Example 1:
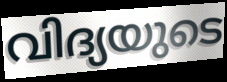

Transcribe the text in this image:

വിദ്യയുടെ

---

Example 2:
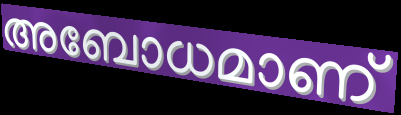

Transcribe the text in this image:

അബോധമാണ്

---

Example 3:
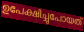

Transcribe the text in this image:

ഉപേക്ഷിച്ചുപോയത്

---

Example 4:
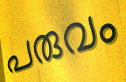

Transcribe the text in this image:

പരുവം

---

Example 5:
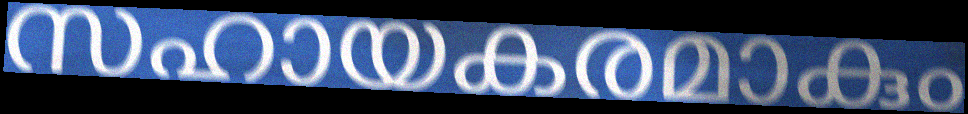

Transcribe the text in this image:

സഹായകരമാകും